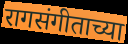
रागसंगीताच्या